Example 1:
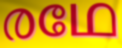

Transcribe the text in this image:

രഥേ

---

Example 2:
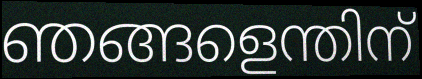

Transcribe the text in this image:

ഞങ്ങളെന്തിന്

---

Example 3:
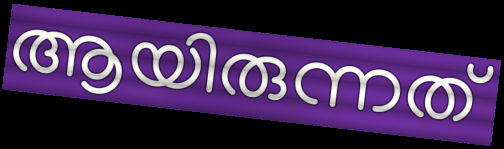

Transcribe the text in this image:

ആയിരുന്നത്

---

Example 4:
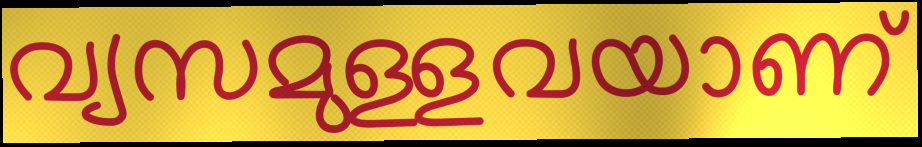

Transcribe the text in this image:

വ്യസമുള്ളവയാണ്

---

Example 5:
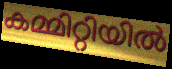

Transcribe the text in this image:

കമ്മിറ്റിയിൽ